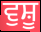
ਵੁਸ਼ੂ